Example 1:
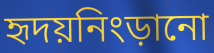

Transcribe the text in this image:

হৃদয়নিংড়ানো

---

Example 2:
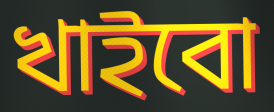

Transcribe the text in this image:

খাইবো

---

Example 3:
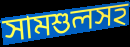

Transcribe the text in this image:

সামশুলসহ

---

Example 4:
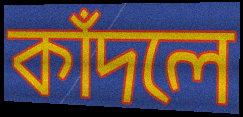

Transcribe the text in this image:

কাঁদলে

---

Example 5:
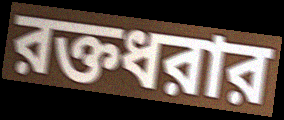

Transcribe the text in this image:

রক্তধরার